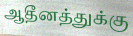
ஆதீனத்துக்கு